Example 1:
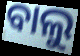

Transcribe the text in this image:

ବାଲୁ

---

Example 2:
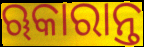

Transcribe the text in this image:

ୠକାରାନ୍ତ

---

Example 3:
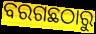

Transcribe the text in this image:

ବରଗଛଠାରୁ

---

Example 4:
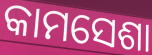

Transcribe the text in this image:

କାମସେଶା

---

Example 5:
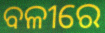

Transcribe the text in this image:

ବଳୀରେ